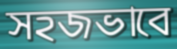
সহজভাবে